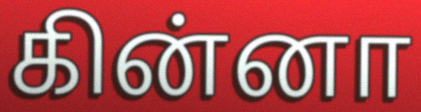
கின்னா